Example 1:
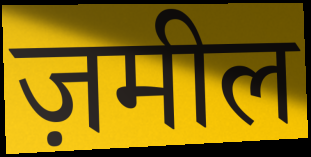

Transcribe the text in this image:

ज़मील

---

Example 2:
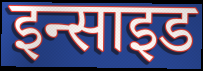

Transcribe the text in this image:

इन्साइड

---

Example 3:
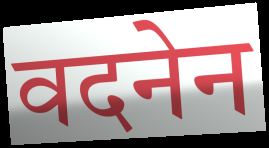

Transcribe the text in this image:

वदनेन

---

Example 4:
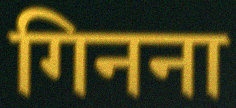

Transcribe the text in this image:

गिनना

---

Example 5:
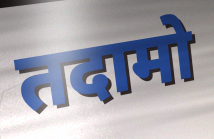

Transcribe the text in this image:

तदामो